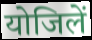
योजिलें